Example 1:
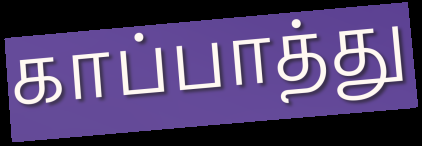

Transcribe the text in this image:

காப்பாத்து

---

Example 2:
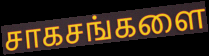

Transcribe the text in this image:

சாகசங்களை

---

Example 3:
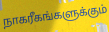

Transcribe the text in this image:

நாகரீகங்களுக்கும்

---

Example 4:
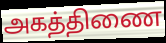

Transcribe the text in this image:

அகத்திணை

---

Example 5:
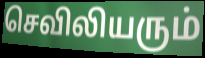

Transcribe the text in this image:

செவிலியரும்